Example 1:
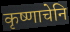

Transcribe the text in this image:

कृष्णाचेनि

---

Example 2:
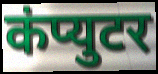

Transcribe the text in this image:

कंप्युटर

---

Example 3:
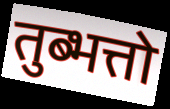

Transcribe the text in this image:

तुब्भत्तो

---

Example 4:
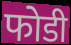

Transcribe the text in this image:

फोडी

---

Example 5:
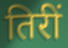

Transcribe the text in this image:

तिरीं